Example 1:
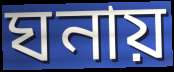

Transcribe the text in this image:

ঘনায়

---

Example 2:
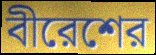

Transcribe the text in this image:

বীরেশের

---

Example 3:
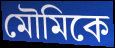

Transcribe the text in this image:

মৌমিকে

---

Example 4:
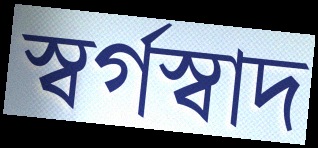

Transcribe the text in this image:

স্বর্গস্বাদ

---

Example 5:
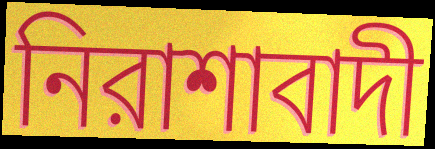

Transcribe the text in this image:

নিরাশাবাদী